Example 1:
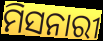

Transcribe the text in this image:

ମିସନାରୀ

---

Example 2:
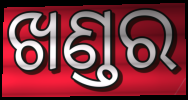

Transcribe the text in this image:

ଖଣ୍ଡର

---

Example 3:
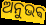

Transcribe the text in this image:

ଅନୁଭଵ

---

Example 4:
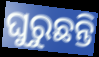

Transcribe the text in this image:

ଘୁରୁଛନ୍ତି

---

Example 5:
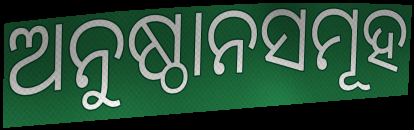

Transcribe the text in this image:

ଅନୁଷ୍ଠାନସମୂହ